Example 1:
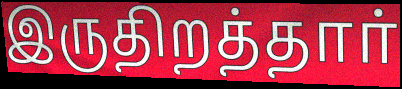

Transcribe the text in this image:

இருதிறத்தார்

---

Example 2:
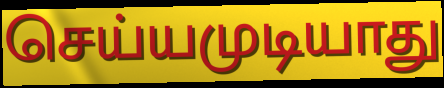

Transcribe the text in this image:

செய்யமுடியாது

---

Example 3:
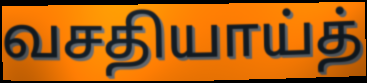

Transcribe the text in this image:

வசதியாய்த்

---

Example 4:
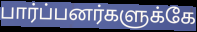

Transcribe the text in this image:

பார்ப்பனர்களுக்கே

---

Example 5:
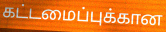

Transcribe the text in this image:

கட்டமைப்புக்கான